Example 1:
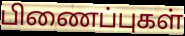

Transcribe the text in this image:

பிணைப்புகள்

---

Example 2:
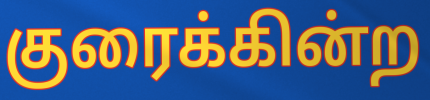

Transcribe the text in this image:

குரைக்கின்ற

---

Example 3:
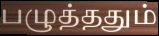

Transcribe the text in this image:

பழுத்ததும்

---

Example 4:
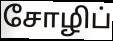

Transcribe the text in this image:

சோழிப்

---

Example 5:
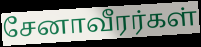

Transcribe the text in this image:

சேனாவீரர்கள்